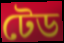
টেড